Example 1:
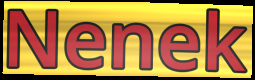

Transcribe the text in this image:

Nenek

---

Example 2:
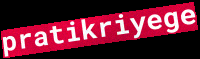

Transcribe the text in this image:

pratikriyege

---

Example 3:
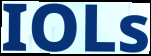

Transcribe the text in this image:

IOLs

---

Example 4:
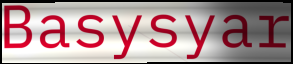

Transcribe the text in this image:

Basysyar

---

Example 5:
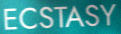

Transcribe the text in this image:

ECSTASY